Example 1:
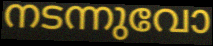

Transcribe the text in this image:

നടന്നുവോ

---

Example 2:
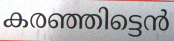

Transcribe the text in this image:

കരഞ്ഞിട്ടെൻ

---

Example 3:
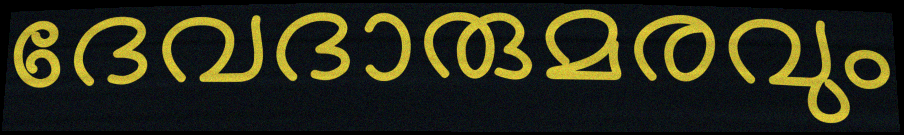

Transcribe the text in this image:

ദേവദാരുമരവും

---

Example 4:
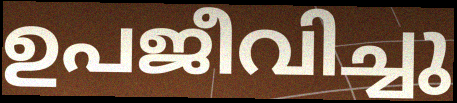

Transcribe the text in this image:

ഉപജീവിച്ചു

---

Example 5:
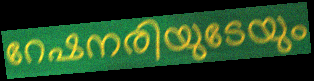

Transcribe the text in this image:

റേഷനരിയുടേയും